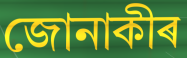
জোনাকীৰ